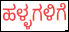
ಹಳ್ಳಗಳಿಗೆ